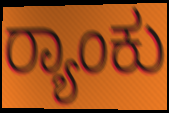
ರ್‍ಯಾಂಕು